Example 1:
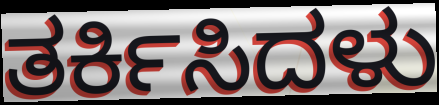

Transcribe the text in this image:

ತರ್ಕಿಸಿದಳು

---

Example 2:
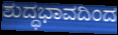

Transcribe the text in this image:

ಶುದ್ಧಭಾವದಿಂದ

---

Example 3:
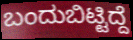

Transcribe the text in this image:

ಬಂದುಬಿಟ್ಟಿದ್ದೆ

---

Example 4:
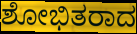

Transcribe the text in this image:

ಶೋಭಿತರಾದ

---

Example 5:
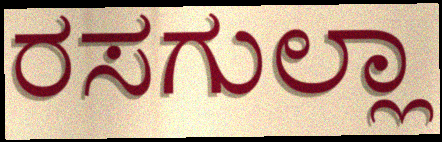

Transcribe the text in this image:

ರಸಗುಲ್ಲಾ